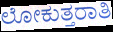
ಲೋಕುತ್ತರಾತಿ